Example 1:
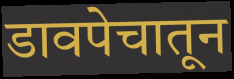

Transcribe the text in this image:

डावपेचातून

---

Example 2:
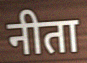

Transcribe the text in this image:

नीता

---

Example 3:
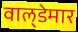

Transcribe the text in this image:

वाल्डेमार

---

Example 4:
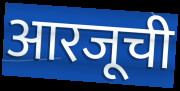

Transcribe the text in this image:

आरजूची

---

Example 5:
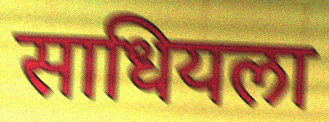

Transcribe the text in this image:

साधियला